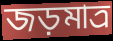
জড়মাত্র